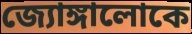
জ্যোঙ্গালোকে